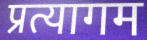
प्रत्यागम